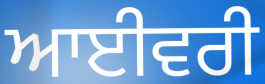
ਆਈਵਰੀ